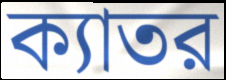
ক্যাতর